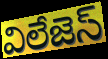
విలేజెస్